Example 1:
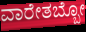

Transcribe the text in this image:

ವಾರೇತಬ್ಬೋ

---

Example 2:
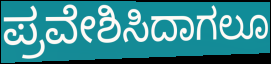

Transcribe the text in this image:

ಪ್ರವೇಶಿಸಿದಾಗಲೂ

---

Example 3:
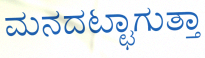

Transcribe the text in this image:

ಮನದಟ್ಟಾಗುತ್ತಾ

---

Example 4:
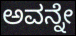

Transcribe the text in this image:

ಅವನ್ನೇ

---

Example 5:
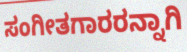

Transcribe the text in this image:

ಸಂಗೀತಗಾರರನ್ನಾಗಿ